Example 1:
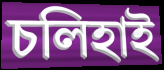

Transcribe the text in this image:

চলিহাই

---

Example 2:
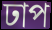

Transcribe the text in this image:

ঢাপ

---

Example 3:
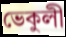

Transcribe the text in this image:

ভেকুলী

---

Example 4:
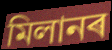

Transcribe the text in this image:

মিলানৰ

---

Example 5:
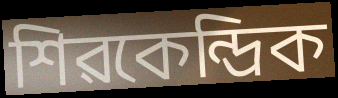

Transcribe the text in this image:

শিৱকেন্দ্ৰিক